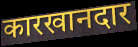
कारखानदार